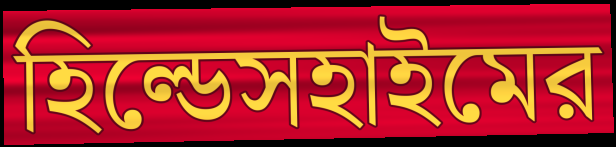
হিল্ডেসহাইমের